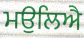
ਮਉਲਿਐ